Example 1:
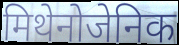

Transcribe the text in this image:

मिथेनोजेनिक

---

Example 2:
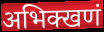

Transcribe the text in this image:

अभिक्खणं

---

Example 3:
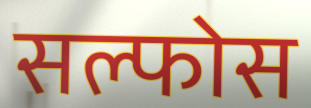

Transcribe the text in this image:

सल्फोस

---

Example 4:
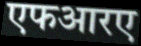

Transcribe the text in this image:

एफआरए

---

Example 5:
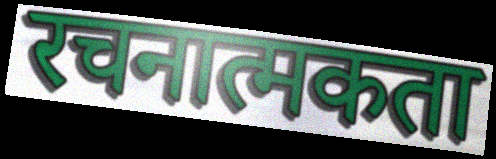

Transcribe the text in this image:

रचनात्मकता